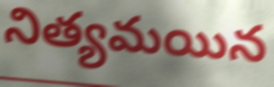
నిత్యమయిన